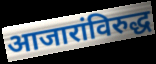
आजारांविरुद्ध